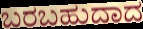
ಬರಬಹುದಾದ